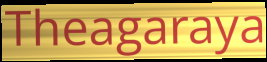
Theagaraya